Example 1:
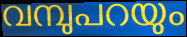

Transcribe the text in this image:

വമ്പുപറയും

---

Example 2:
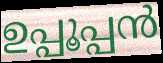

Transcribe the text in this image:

ഉപ്പൂപ്പൻ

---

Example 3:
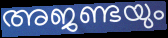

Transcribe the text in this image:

അജണ്ടയും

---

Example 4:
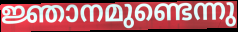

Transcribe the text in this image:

ജ്ഞാനമുണ്ടെന്നു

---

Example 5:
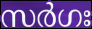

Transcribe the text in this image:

സർഗഃ